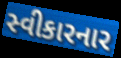
સ્વીકારનાર